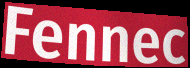
Fennec